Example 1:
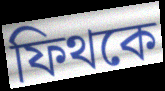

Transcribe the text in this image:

ফিথকে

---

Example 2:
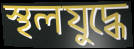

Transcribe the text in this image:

স্থলযুদ্ধে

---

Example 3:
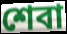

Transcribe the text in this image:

শেবা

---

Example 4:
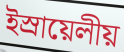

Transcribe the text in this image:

ইস্রায়েলীয়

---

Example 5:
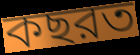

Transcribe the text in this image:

কছরত